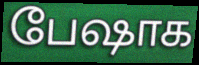
பேஷாக